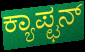
ಕ್ಯಾಪ್ಟನ್